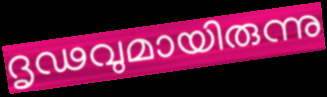
ദൃഢവുമായിരുന്നു